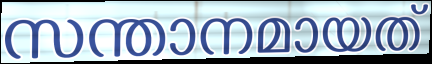
സന്താനമായത്